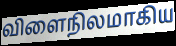
விளைநிலமாகிய